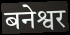
बनेश्वर